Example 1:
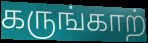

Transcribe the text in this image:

கருங்காற்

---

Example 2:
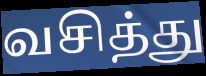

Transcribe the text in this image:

வசித்து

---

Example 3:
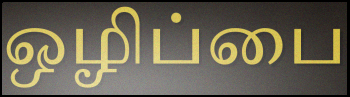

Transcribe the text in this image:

ஒழிப்பை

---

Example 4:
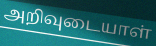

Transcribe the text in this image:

அறிவுடையாள்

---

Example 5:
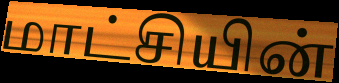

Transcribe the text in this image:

மாட்சியின்